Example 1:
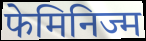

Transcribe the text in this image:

फेमिनिज्‍म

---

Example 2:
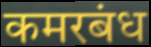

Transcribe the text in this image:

कमरबंध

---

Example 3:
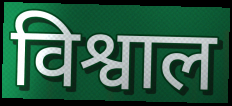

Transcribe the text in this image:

विश्वाल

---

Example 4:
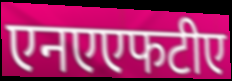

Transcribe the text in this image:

एनएएफटीए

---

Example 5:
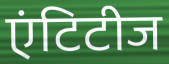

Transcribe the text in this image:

एंटिटीज